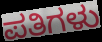
ಪತಿಗಳು